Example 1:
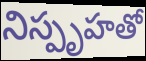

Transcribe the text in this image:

నిస్పృహతో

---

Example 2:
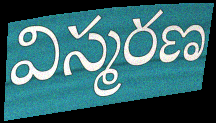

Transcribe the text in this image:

విస్మరణ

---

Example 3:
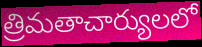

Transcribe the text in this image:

త్రిమతాచార్యులలో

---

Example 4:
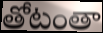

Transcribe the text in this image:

తోటంతా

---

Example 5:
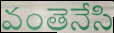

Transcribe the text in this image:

వంతెనేసి